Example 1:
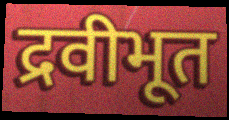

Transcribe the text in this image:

द्रवीभूत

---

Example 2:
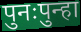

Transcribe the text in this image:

पुनःपुन्हा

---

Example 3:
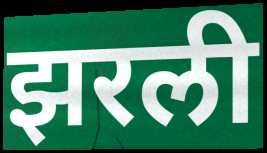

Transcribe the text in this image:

झरली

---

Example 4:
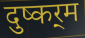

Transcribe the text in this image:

दुष्कर्म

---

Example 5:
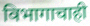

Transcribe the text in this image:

विभागाचाही